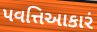
પવત્તિઆકારં